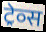
ट्रेव्स